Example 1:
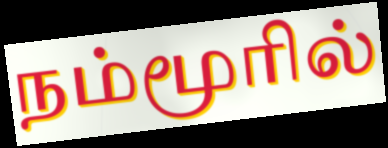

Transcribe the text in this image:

நம்மூரில்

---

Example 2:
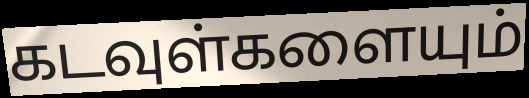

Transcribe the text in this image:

கடவுள்களையும்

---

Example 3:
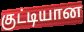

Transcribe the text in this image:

குட்டியான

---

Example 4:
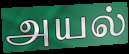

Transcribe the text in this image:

அயல்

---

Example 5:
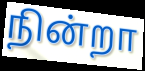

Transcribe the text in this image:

நின்றா